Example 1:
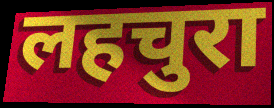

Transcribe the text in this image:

लहचुरा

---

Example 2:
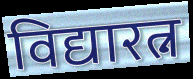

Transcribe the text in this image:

विद्यारत्न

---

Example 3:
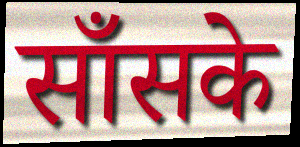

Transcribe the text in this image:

साँसके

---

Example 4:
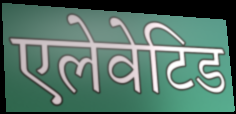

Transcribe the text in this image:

एलेवेटिड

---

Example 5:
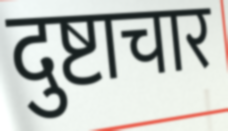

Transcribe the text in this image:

दुष्टाचार